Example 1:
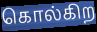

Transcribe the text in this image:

கொல்கிற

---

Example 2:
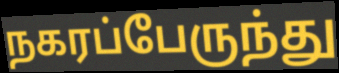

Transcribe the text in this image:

நகரப்பேருந்து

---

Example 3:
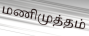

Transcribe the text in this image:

மணிமுத்தம்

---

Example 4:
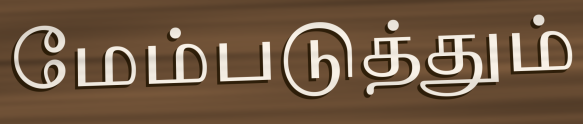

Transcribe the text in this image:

மேம்படுத்தும்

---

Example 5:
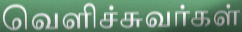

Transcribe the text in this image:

வெளிச்சுவர்கள்